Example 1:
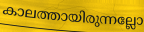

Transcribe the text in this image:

കാലത്തായിരുന്നല്ലോ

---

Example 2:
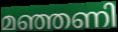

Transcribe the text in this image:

മഞ്ഞണി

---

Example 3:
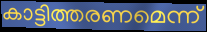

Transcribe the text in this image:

കാട്ടിത്തരണമെന്ന്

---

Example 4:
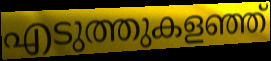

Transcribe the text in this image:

എടുത്തുകളഞ്ഞ്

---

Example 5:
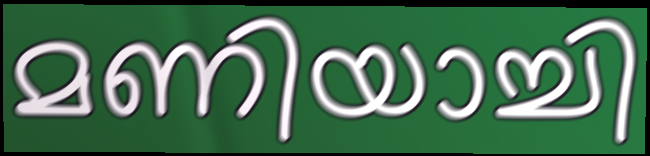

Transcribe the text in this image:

മണിയാച്ചി